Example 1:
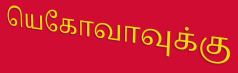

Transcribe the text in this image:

யெகோவாவுக்கு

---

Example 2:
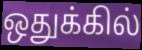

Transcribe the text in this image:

ஒதுக்கில்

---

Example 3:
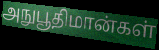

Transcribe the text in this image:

அநுபூதிமான்கள்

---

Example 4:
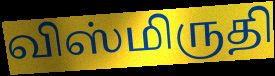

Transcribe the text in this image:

விஸ்மிருதி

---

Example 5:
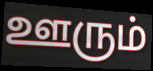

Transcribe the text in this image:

ஊரும்